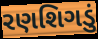
રણશિગડું